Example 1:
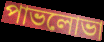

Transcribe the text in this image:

পাভলোভা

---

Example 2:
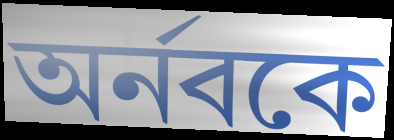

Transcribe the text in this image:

অর্নবকে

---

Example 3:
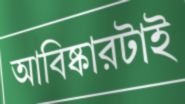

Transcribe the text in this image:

আবিষ্কারটাই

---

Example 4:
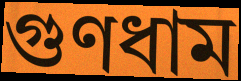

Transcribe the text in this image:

গুণধাম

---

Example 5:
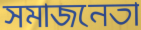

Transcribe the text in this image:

সমাজনেতা